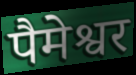
पैमेश्वर